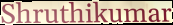
Shruthikumar